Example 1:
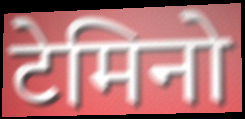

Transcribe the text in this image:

टेमिनो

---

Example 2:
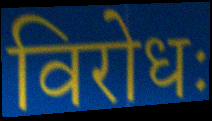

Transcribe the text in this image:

विरोधः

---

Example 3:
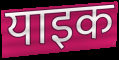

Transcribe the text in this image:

याइक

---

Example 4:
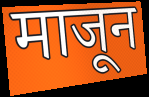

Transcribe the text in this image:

माजून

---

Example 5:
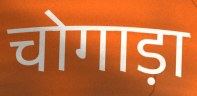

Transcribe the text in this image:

चोगाड़ा